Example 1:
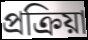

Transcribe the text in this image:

প্ৰক্ৰিয়া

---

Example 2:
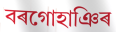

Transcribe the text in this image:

বৰগোহাঞিৰ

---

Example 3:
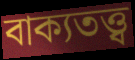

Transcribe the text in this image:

বাক্যতত্ত্ব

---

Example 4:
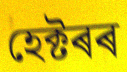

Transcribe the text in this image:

হেক্টৰৰ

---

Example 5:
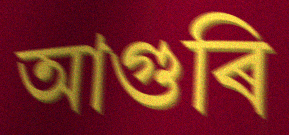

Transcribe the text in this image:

আগুৰি